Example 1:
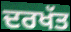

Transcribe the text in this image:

ਦਰਖੱਤ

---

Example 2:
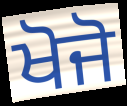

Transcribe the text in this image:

ਖੋਜੋ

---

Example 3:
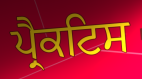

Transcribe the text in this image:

ਪ੍ਰੈਕਟਿਸ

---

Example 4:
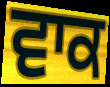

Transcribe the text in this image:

ਵਾਕ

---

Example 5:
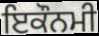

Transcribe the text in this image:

ਇਕੌਨਮੀ